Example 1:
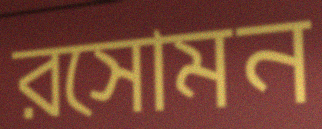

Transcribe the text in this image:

রসোমন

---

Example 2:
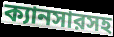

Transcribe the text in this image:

ক্যানসারসহ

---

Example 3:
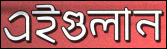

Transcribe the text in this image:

এইগুলান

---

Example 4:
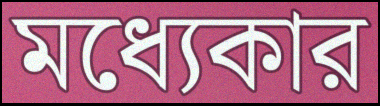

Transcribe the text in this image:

মধ্যেকার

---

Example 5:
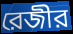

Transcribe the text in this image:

রেজীর